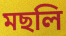
মছলি